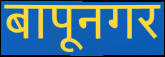
बापूनगर